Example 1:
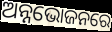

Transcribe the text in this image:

ଅନ୍ନଭୋଜନରେ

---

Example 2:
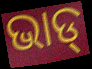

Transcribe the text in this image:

ଭାଡ୍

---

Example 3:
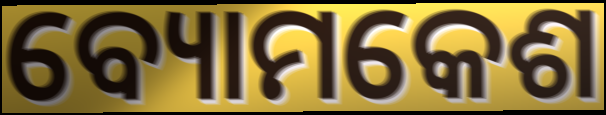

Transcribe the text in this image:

ବ୍ୟୋମକେଶ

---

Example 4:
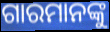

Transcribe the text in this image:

ଗାରମାନଙ୍କୁ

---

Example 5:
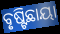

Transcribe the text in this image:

ବୃଷ୍ଟିଛାୟା